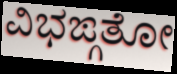
ವಿಭಙ್ಗತೋ